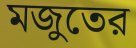
মজুতের